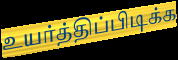
உயர்த்திப்பிடிக்க